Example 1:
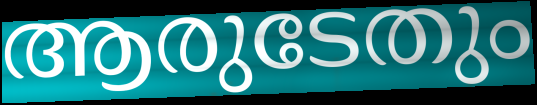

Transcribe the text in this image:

ആരുടേതും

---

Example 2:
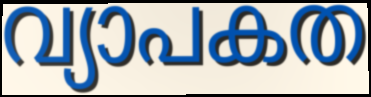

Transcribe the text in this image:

വ്യാപകത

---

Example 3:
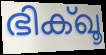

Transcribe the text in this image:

ഭിക്ഖൂ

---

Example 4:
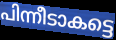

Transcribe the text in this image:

പിന്നീടാകട്ടെ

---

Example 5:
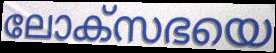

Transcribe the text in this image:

ലോക്സഭയെ